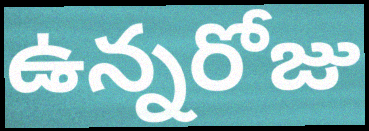
ఉన్నరోజు